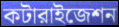
কটারাইজেশন